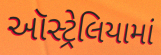
ઑસ્ટ્રેલિયામાં